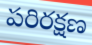
పరిరక్షణ